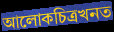
আলোকচিত্ৰখনত